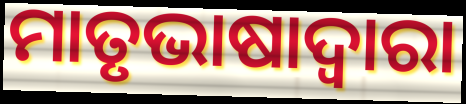
ମାତୃଭାଷାଦ୍ୱାରା